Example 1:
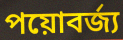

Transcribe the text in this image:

পয়োবর্জ্য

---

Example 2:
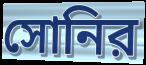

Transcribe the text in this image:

সোনির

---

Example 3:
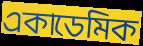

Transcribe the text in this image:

একাডেমিক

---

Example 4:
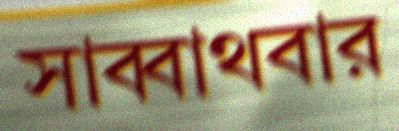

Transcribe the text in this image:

সাব্বাথবার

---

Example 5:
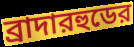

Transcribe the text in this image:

ব্রাদারহুডের